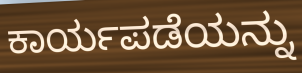
ಕಾರ್ಯಪಡೆಯನ್ನು